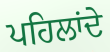
ਪਹਿਲਾਂਦੇ